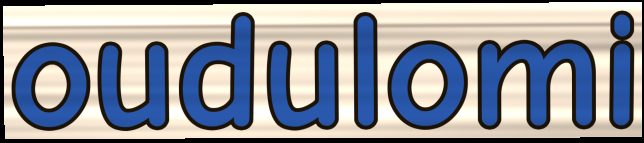
oudulomi